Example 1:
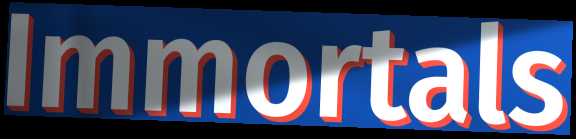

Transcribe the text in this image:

Immortals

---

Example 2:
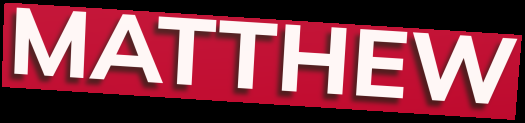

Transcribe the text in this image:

MATTHEW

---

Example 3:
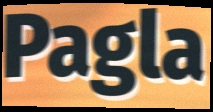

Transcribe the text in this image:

Pagla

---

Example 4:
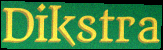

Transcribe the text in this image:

Dikstra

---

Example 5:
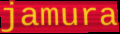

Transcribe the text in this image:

jamura